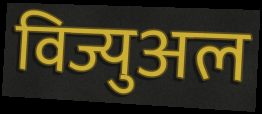
विज्युअल